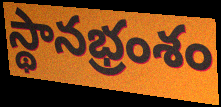
స్థానభ్రంశం